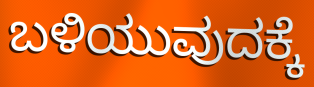
ಬಳಿಯುವುದಕ್ಕೆ